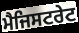
ਮੈਜਿਸਟਰੇਟ